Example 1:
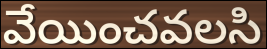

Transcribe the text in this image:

వేయించవలసి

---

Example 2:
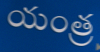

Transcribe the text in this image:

యంత్ర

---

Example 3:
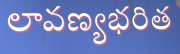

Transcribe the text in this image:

లావణ్యభరిత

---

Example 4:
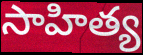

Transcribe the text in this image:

సాహిత్య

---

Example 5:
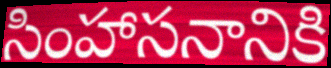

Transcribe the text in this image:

సింహాసనానికి